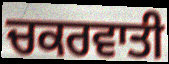
ਚਕਰਵਾਤੀ